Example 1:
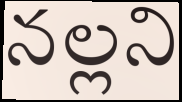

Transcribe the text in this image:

నల్లని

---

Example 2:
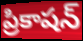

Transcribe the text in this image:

ప్రికాషన్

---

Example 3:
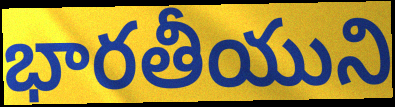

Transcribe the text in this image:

భారతీయుని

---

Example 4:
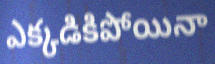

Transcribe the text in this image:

ఎక్కడికిపోయినా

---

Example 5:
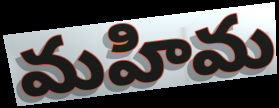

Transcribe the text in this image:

మహిమ